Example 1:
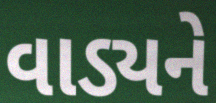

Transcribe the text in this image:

વાડ્યને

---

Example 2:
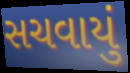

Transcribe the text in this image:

સચવાયું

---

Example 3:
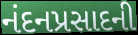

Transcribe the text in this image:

નંદનપ્રસાદની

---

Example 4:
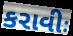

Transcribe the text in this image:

કરાવીઃ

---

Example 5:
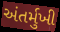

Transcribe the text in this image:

અંતર્મુખી